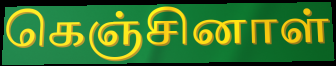
கெஞ்சினாள்